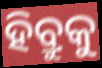
ହିବ୍ରୁକୁ